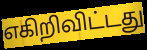
எகிறிவிட்டது